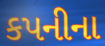
કપનીના